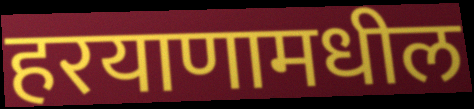
हरयाणामधील